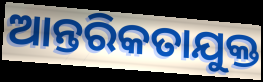
ଆନ୍ତରିକତାଯୁକ୍ତ